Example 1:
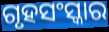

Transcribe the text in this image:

ଗୃହସଂସ୍କାର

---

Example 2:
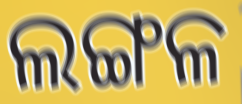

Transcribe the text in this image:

ଲଙ୍ଗଳ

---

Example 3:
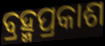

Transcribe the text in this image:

ବ୍ରହ୍ମପ୍ରକାଶ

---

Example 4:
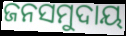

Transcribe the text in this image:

ଜନସମୁଦାୟ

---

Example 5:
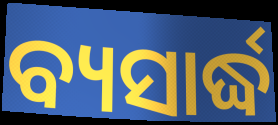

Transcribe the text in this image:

ବ୍ୟସାର୍ଦ୍ଧ